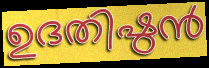
ഉദതിഷ്ഠൻ